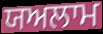
ਯਅਲਾਮ